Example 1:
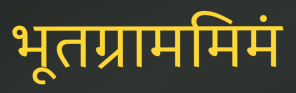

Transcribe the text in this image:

भूतग्राममिमं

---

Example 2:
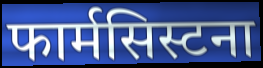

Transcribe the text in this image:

फार्मसिस्टना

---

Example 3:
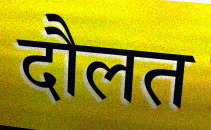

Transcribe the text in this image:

दौलत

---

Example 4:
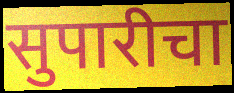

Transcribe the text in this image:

सुपारीचा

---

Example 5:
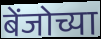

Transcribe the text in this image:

बेंजोच्या